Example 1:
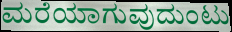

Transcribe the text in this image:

ಮರೆಯಾಗುವುದುಂಟು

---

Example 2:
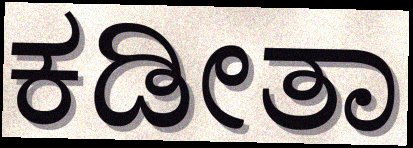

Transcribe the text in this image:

ಕಡೀತಾ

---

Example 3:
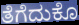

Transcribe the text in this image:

ತೆಗೆದುಕೊ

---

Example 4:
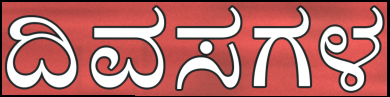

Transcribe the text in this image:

ದಿವಸಗಳ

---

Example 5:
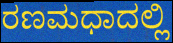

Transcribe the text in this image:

ರಣಮಧಾದಲ್ಲಿ